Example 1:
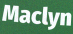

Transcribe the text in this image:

Maclyn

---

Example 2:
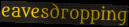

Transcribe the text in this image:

eavesdropping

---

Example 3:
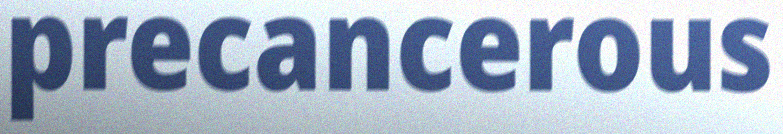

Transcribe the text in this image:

precancerous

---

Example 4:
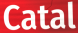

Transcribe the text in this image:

Catal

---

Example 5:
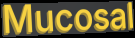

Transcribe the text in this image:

Mucosal